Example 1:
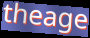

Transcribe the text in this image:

theage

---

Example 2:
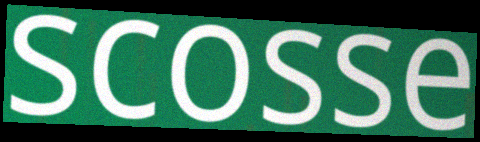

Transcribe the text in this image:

scosse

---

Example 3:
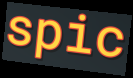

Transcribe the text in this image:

spic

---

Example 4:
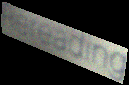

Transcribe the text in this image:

Rereading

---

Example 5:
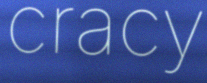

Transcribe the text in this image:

cracy